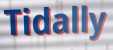
Tidally